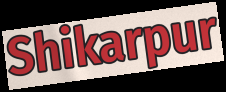
Shikarpur